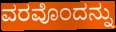
ವರವೊಂದನ್ನು